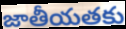
జాతీయతకు